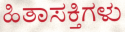
ಹಿತಾಸಕ್ತಿಗಳು